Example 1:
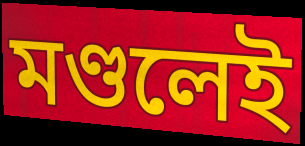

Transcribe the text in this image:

মণ্ডলেই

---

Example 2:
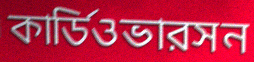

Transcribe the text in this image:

কার্ডিওভারসন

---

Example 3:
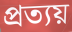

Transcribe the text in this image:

প্রত্যয়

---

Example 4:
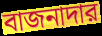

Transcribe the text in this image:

বাজনাদার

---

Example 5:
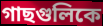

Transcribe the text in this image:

গাছগুলিকে